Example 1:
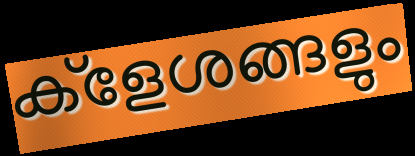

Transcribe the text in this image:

ക്ളേശങ്ങളും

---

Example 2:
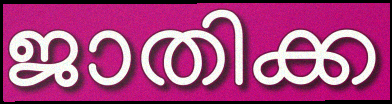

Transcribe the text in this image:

ജാതിക്ക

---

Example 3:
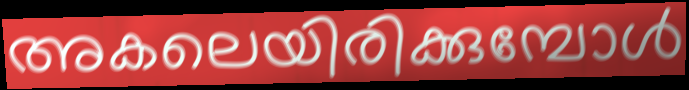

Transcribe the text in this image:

അകലെയിരിക്കുമ്പോൾ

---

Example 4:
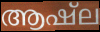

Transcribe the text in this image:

ആഷ്ല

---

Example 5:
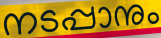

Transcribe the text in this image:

നടപ്പാനും